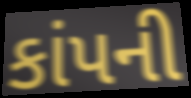
કાંપની